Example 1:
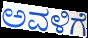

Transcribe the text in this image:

ಅವಳಿಗೆ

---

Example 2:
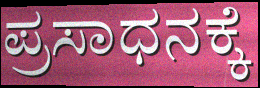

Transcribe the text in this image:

ಪ್ರಸಾಧನಕ್ಕೆ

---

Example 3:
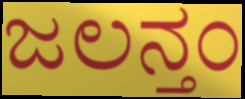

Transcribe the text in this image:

ಜಲನ್ತಂ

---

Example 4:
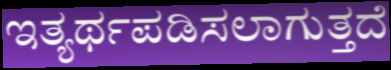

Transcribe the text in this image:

ಇತ್ಯರ್ಥಪಡಿಸಲಾಗುತ್ತದೆ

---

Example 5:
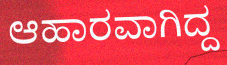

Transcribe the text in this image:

ಆಹಾರವಾಗಿದ್ದ